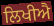
ਲਿਖੀਐ